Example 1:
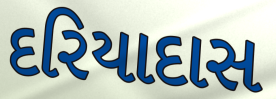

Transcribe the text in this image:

દરિયાદાસ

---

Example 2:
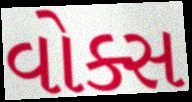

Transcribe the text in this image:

વોક્સ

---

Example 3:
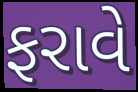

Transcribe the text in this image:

ફરાવે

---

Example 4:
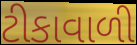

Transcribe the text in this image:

ટીકાવાળી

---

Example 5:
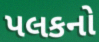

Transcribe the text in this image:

પલકનો